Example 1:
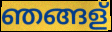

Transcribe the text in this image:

ഞങ്ങള്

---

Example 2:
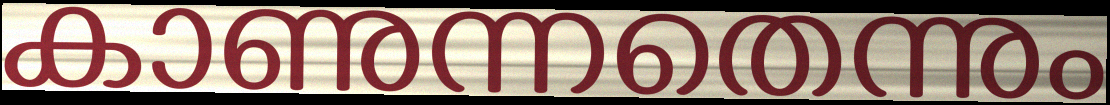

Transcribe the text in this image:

കാണുന്നതെന്നും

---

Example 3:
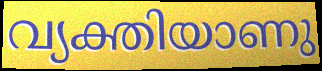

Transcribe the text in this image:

വ്യക്തിയാണു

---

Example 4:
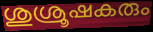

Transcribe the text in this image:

ശുശ്രൂഷകരും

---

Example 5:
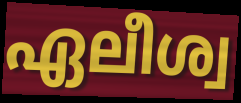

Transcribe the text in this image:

ഏലീശ്വ